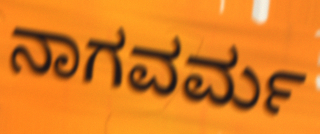
ನಾಗವರ್ಮ